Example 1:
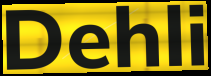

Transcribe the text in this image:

Dehli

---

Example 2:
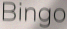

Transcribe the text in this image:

Bingo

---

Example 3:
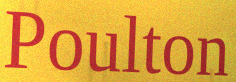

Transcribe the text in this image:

Poulton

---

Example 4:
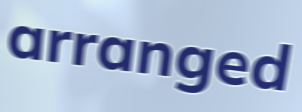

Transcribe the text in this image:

arranged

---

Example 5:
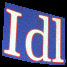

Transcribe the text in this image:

Idl